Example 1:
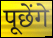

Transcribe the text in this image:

पूछेंगे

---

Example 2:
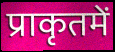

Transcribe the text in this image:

प्राकृतमें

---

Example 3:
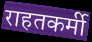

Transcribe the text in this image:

राहतकर्मी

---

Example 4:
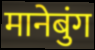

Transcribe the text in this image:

मानेबुंग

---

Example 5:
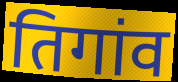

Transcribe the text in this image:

तिगांव